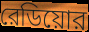
রেডিয়োর